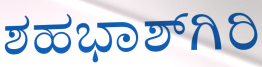
ಶಹಭಾಶ್‌ಗಿರಿ